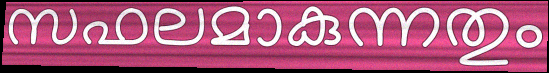
സഫലമാകുന്നതും